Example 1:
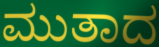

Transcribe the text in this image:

ಮುತಾದ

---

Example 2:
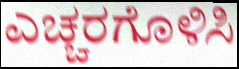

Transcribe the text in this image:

ಎಚ್ಚರಗೊಳಿಸಿ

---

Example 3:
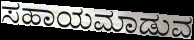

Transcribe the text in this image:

ಸಹಾಯಮಾಡುವ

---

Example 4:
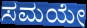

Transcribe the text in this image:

ಸಮಯೇ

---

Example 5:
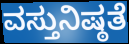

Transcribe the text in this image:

ವಸ್ತುನಿಷ್ಠತೆ